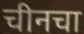
चीनचा